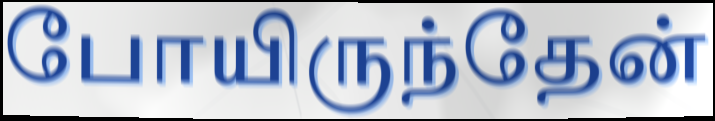
போயிருந்தேன்